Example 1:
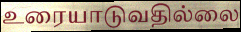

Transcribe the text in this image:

உரையாடுவதில்லை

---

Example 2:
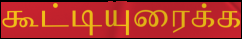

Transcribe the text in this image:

கூட்டியுரைக்க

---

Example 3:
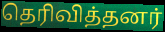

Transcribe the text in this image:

தெரிவித்தனர்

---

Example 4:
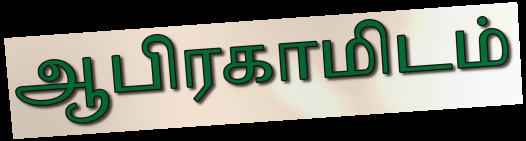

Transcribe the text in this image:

ஆபிரகாமிடம்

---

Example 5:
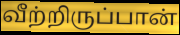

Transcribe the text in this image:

வீற்றிருப்பான்